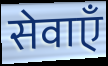
सेवाएँ